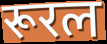
रूरल